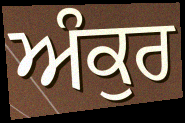
ਅੰਕੁਰ